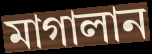
মাগালান